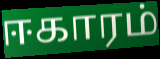
ஈகாரம்